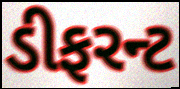
ડીફરન્ટ